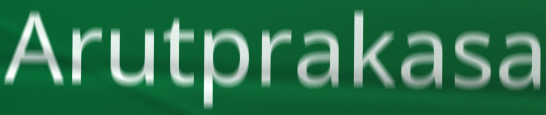
Arutprakasa